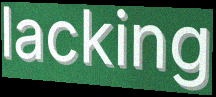
lacking